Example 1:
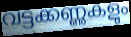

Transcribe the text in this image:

വട്ടക്കണ്ണുകളും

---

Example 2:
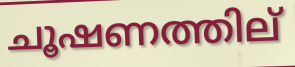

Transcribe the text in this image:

ചൂഷണത്തില്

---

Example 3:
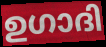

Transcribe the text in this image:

ഉഗാദി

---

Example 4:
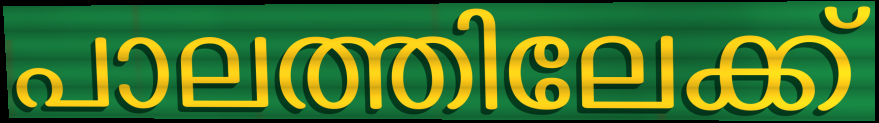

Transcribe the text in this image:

പാലത്തിലേക്ക്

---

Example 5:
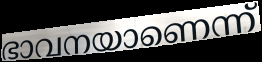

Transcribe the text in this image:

ഭാവനയാണെന്ന്